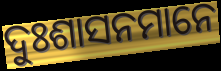
ଦୁଃଶାସନମାନେ